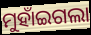
ମୁହାଁଇଗଲା